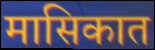
मासिकात